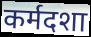
कर्मदशा